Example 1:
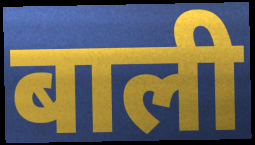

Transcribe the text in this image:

बाली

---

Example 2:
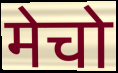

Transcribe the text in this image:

मेचो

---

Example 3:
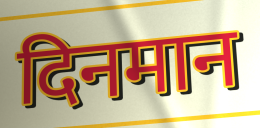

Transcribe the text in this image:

दिनमान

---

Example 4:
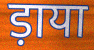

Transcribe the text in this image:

ड़ाया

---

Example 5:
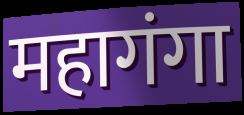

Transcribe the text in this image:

महागंगा